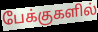
பேக்குகளில்